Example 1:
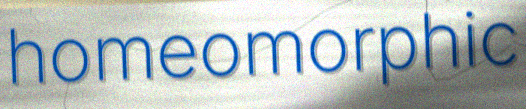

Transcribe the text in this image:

homeomorphic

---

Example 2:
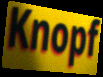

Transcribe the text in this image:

Knopf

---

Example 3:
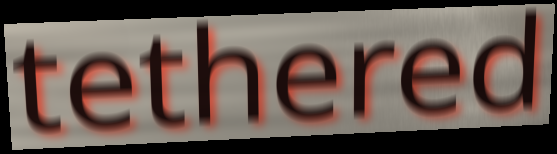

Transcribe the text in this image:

tethered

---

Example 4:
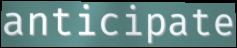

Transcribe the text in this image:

anticipate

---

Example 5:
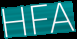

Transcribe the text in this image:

HFA